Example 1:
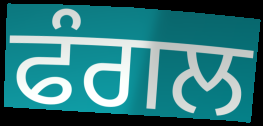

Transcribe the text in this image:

ਫੰਗਲ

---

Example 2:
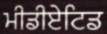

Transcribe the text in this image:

ਮੀਡੀਏਟਿਡ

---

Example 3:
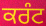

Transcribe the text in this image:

ਕਰੰਟ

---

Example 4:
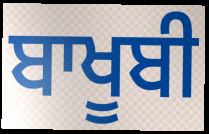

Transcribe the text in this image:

ਬਾਖੂਬੀ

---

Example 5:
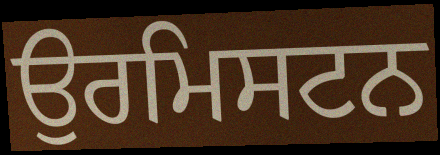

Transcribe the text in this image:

ਉਰਮਿਸਟਨ